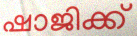
ഷാജിക്ക്